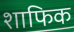
शाफिक